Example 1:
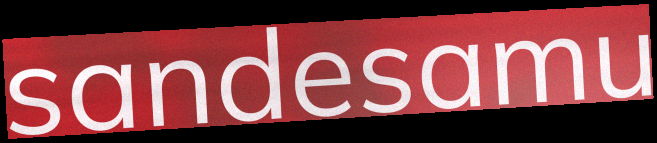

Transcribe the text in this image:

sandesamu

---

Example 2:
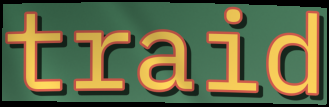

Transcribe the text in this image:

traid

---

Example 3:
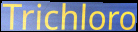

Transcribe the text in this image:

Trichloro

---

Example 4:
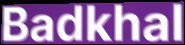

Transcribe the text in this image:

Badkhal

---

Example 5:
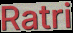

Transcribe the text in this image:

Ratri